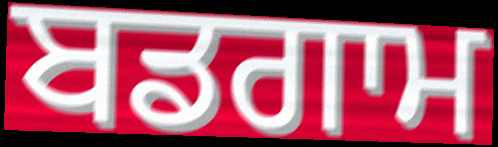
ਬਡਗਾਮ